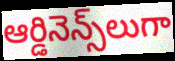
ఆర్డినెన్స్‌లుగా